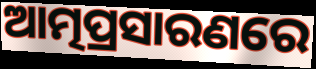
ଆତ୍ମପ୍ରସାରଣରେ